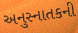
અનુસ્નાતકની